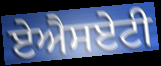
ਏਐਸਏਟੀ